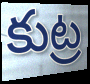
కుట్ర